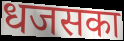
धजसका